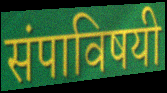
संपाविषयी